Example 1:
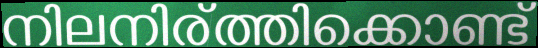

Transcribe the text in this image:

നിലനിര്ത്തിക്കൊണ്ട്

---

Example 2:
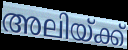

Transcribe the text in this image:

അലിയ്ക്ക്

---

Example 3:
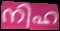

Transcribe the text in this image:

നിഹ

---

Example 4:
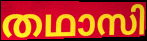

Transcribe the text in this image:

തഥാസി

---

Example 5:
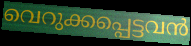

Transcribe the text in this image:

വെറുക്കപ്പെട്ടവൻ